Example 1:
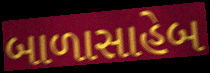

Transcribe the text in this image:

બાળાસાહેબ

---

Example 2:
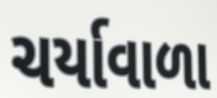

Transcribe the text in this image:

ચર્યાવાળા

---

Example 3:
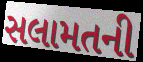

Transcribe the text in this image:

સલામતની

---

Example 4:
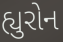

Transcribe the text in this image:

હ્યુરોન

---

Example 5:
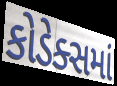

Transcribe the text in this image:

કોડેક્સમાં